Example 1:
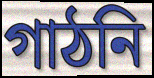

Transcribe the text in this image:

গাঠনি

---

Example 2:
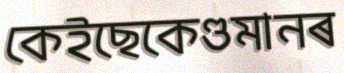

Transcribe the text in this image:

কেইছেকেণ্ডমানৰ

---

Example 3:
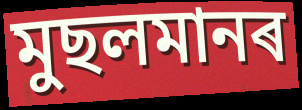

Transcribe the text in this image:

মুছলমানৰ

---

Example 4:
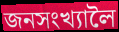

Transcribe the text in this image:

জনসংখ্যালৈ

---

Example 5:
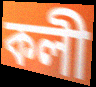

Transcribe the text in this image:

কলী